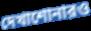
দেখাশোনারও